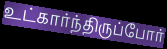
உட்கார்ந்திருப்போர்